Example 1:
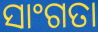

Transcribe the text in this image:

ସାଂଗତା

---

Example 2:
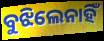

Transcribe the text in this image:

ବୁଝିଲେନାହିଁ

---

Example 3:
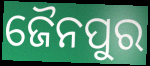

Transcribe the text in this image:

ଜୈନପୁର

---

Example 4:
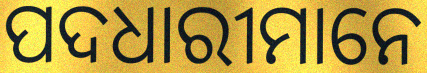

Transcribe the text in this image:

ପଦଧାରୀମାନେ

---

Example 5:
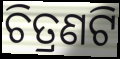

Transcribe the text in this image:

ଚିତ୍ରଣଟି